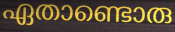
ഏതാണ്ടൊരു